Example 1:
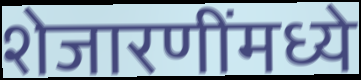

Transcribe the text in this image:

शेजारणींमध्ये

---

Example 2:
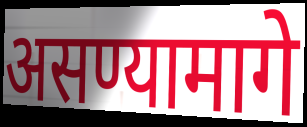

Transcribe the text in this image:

असण्यामागे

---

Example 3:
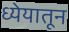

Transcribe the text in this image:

ध्येयातून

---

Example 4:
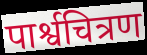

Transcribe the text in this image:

पार्श्वचित्रण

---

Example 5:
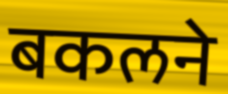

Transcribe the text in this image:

बकलने